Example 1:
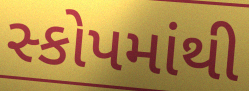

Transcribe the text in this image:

સ્કોપમાંથી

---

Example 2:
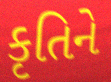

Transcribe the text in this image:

કૃતિને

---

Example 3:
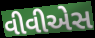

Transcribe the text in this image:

વીવીએસ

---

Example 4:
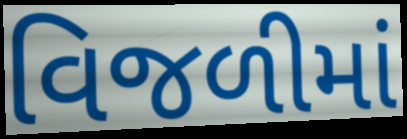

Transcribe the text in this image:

વિજળીમાં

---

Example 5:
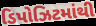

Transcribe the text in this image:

ડિપોઝિટમાંથી